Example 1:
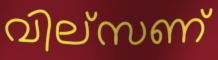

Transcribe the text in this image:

വില്സണ്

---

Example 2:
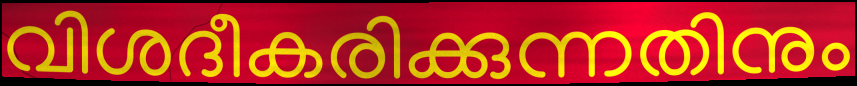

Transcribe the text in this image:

വിശദീകരിക്കുന്നതിനും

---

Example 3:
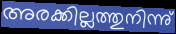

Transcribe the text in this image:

അരക്കില്ലത്തുനിന്നു്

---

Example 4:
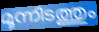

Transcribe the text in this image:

മൂന്നിടത്തും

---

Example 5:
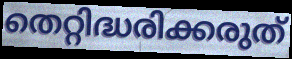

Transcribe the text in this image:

തെറ്റിദ്ധരിക്കരുത്